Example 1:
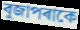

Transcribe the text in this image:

বুজাপৰাকে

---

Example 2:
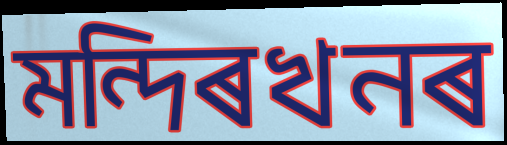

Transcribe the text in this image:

মন্দিৰখনৰ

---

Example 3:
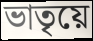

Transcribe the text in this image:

ভাতৃয়ে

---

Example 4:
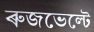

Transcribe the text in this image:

ৰুজভেল্টে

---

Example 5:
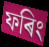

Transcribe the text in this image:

ফৰিং